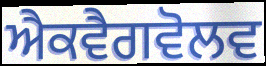
ਐਕਵੈਗਵੋਲਵ